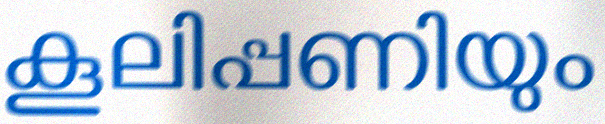
കൂലിപ്പണിയും